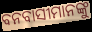
ବନବାସୀମାନଙ୍କୁ